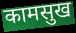
कामसुख